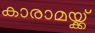
കാരാമയ്ക്ക്